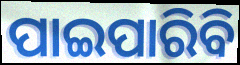
ପାଇପାରିବି